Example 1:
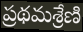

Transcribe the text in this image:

ప్రథమశ్రేణి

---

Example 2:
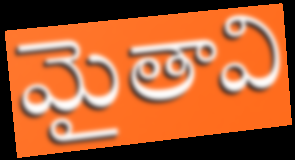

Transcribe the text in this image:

మైతావి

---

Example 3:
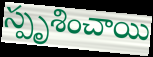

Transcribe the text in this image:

స్పృశించాయి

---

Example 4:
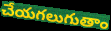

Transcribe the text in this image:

చేయగలుగుతాం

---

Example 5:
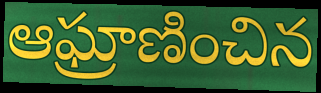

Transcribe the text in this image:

ఆఘ్రాణించిన